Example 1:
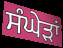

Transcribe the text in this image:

ਸੰਘੇੜਾਂ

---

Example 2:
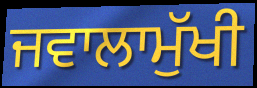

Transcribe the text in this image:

ਜਵਾਲਾਮੁੱਖੀ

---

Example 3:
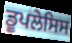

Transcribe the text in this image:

ਡੂਪਲੇਸਿਸ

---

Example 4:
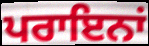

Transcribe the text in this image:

ਪਰਾਇਨਾਂ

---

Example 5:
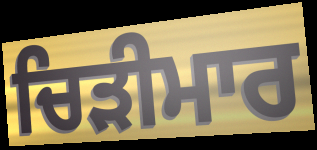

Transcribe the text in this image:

ਚਿੜੀਮਾਰ